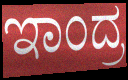
ಇಾಂದ್ರ